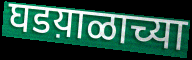
घडय़ाळाच्या